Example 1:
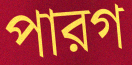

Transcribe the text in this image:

পারগ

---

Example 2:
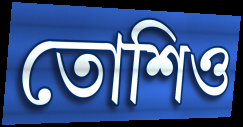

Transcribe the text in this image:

তোশিও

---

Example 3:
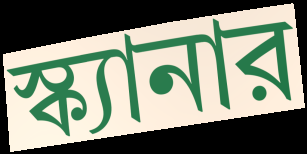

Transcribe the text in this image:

স্ক্যানার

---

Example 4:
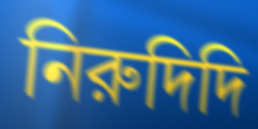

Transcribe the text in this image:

নিরুদিদি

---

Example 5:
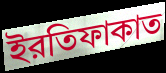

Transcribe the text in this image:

ইরতিফাকাত